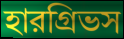
হারগ্রিভস